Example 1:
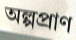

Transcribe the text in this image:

অল্পপ্রাণ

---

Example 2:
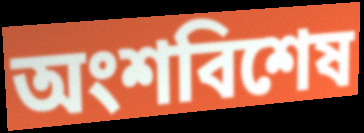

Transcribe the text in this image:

অংশবিশেষ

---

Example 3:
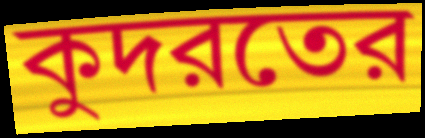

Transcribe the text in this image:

কুদরতের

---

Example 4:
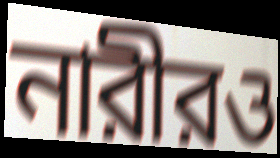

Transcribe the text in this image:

নারীরও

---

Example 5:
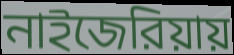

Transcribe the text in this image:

নাইজেরিয়ায়